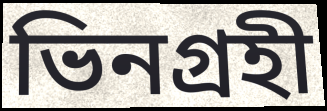
ভিনগ্রহী